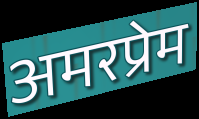
अमरप्रेम